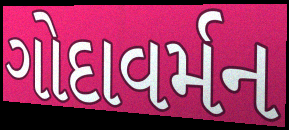
ગોદાવર્મન